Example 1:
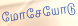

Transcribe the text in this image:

மோசேயோடு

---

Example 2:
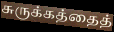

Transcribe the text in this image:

சுருக்கத்தைத்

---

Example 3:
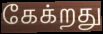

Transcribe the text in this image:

கேக்றது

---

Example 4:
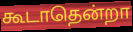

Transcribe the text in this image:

கூடாதென்றா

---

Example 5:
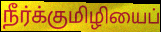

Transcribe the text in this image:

நீர்க்குமிழியைப்